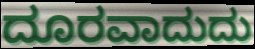
ದೂರವಾದುದು